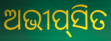
ଅଭୀପ୍‌ସିତ